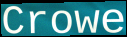
Crowe